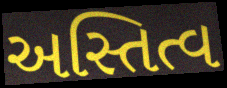
અસ્તિત્વ